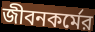
জীবনকর্মের